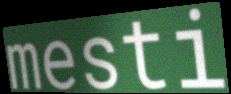
mesti